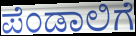
ಪೆಂಡಾಲಿಗೆ